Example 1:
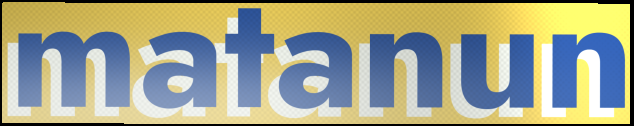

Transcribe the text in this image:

matanun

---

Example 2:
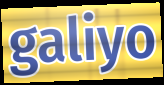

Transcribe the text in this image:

galiyo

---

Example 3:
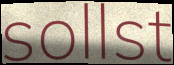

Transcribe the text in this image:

sollst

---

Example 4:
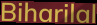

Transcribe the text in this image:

Biharilal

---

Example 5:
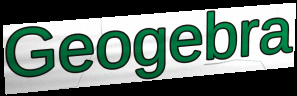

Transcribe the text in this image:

Geogebra